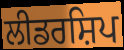
ਲੀਡਰਸ਼ਿਪ